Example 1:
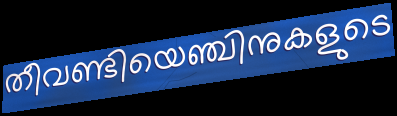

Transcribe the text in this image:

തീവണ്ടിയെഞ്ചിനുകളുടെ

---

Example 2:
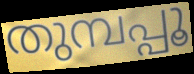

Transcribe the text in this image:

തുമ്പപ്പൂ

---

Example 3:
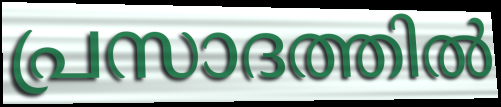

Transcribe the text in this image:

പ്രസാദത്തിൽ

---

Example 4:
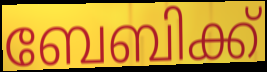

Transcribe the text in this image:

ബേബിക്ക്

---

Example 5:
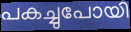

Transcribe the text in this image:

പകച്ചുപോയി